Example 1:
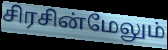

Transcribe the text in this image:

சிரசின்மேலும்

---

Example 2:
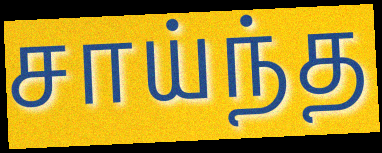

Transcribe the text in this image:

சாய்ந்த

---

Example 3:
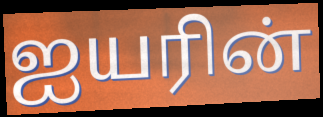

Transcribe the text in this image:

ஐயரின்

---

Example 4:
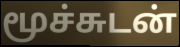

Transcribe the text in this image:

மூச்சுடன்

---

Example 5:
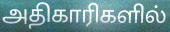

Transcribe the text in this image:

அதிகாரிகளில்